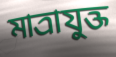
মাত্রাযুক্ত